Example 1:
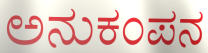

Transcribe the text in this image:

ಅನುಕಂಪನ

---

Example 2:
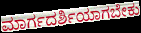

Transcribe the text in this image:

ಮಾರ್ಗದರ್ಶಿಯಾಗಬೇಕು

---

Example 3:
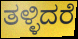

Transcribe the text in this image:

ತಳ್ಳಿದರೆ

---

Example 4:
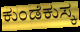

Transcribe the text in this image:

ಕುಂಡೆಕುಸ್ಕ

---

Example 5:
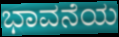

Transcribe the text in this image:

ಭಾವನೆಯ